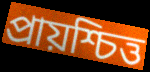
প্রায়শ্চিত্ত